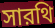
সারথি